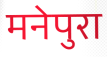
मनेपुरा